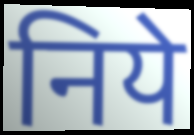
निये